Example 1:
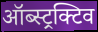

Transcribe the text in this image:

ऑब्स्ट्रक्टिव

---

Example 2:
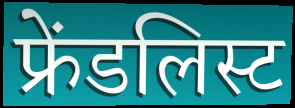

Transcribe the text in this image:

फ्रेंडलिस्ट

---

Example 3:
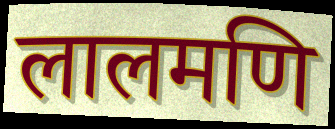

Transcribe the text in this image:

लालमणि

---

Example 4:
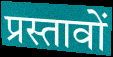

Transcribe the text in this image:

प्रस्‍तावों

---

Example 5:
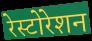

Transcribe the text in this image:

रेस्टोरेशन